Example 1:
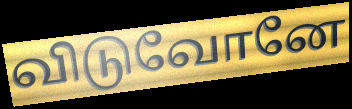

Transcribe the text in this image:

விடுவோனே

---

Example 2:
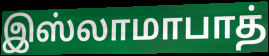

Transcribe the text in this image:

இஸ்லாமாபாத்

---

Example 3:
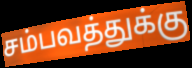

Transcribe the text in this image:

சம்பவத்துக்கு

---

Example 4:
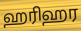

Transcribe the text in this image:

ஹரிஹர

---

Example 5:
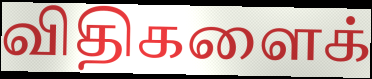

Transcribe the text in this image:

விதிகளைக்